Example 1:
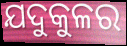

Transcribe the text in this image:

ଯଦୁକୁଳର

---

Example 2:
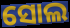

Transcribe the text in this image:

ସୋଲ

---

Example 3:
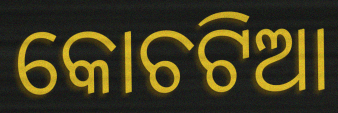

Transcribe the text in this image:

କୋଚଟିଆ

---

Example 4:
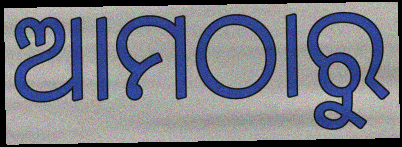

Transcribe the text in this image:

ଆମଠାରୁ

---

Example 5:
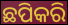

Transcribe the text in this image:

ଛପିକରି